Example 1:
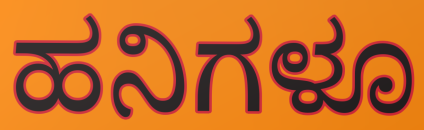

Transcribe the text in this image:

ಹನಿಗಳೂ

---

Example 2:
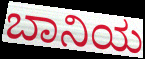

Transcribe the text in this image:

ಬಾನಿಯ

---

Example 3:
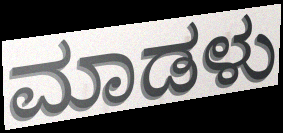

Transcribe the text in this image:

ಮಾಡಳು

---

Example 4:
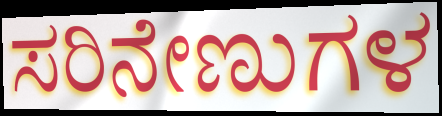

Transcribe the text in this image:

ಸರಿನೇಣುಗಳ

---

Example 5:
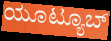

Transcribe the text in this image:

ಯೂಟ್ಯೂಬ್